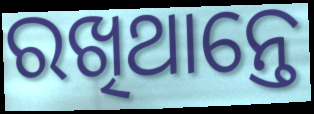
ରଖିଥାନ୍ତେ